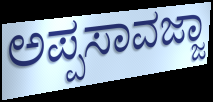
ಅಪ್ಪಸಾವಜ್ಜಾ